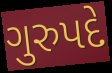
ગુરુપદે